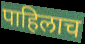
पाहिलाच